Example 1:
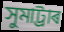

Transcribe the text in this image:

সুমাট্ৰাৰ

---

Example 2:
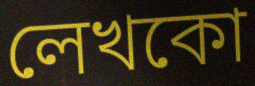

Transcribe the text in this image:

লেখকো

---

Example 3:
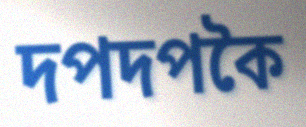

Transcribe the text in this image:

দপদপকৈ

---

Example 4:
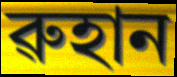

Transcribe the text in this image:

ৱুহান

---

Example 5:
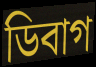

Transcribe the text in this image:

ডিবাগ